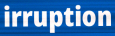
irruption